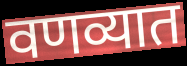
वणव्यात